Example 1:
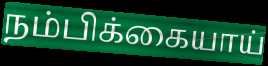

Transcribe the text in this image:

நம்பிக்கையாய்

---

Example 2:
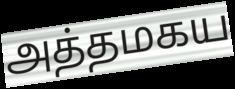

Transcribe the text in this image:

அத்தமகய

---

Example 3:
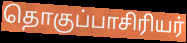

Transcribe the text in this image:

தொகுப்பாசிரியர்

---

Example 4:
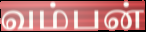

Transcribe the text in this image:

வம்பன்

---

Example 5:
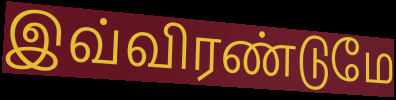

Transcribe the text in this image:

இவ்விரண்டுமே